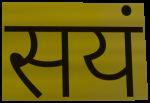
सयं